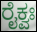
ರೈಕ್ವಃ